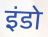
इंडो